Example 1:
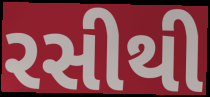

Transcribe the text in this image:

રસીથી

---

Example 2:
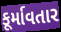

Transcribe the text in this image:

કૂર્માવતાર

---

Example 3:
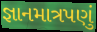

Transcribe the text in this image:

જ્ઞાનમાત્રપણું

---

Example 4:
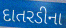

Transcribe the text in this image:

દાતરડીના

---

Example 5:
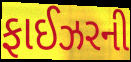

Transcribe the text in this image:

ફાઈઝરની